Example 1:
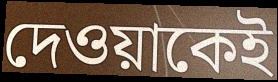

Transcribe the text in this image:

দেওয়াকেই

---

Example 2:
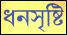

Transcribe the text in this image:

ধনসৃষ্টি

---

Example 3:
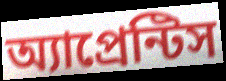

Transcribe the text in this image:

অ্যাপ্রেন্টিস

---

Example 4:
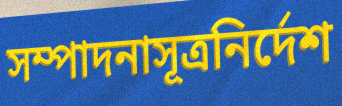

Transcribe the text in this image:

সম্পাদনাসূত্রনির্দেশ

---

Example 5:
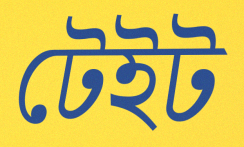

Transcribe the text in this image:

টেইট